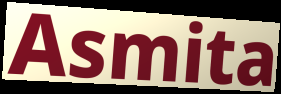
Asmita